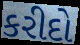
કરીદો